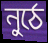
নুঠে